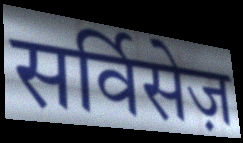
सर्विसेज़